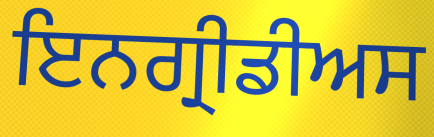
ਇਨਗ੍ਰੀਡੀਅਸ